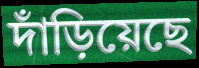
দাঁড়িয়েছে